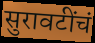
सुरावटींचं